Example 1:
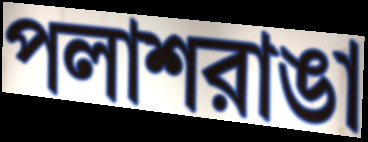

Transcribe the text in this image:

পলাশরাঙা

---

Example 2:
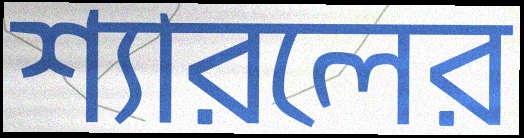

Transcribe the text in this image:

শ্যারলের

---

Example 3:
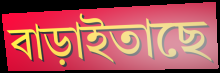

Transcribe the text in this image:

বাড়াইতাছে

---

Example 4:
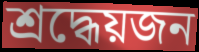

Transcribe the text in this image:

শ্রদ্ধেয়জন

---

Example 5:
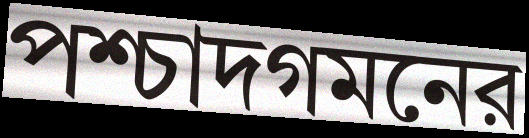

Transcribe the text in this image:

পশ্চাদগমনের